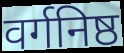
वर्गनिष्ठ